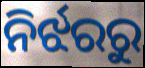
ନିର୍ଝରରୁ